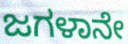
ಜಗಳಾನೇ